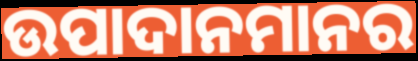
ଉପାଦାନମାନର